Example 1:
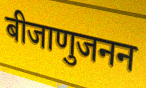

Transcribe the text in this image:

बीजाणुजनन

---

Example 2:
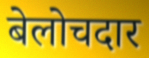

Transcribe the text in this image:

बेलोचदार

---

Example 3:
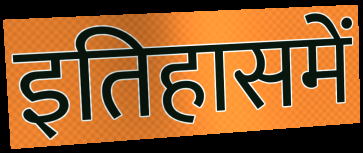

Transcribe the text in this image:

इतिहासमें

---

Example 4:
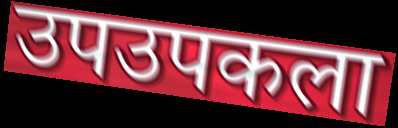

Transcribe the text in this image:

उपउपकला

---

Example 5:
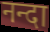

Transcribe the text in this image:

नन्दा